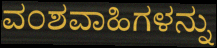
ವಂಶವಾಹಿಗಳನ್ನು